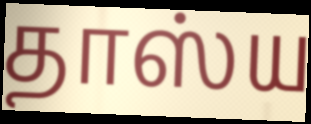
தாஸ்ய